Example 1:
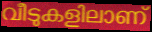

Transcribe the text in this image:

വീടുകളിലാണ്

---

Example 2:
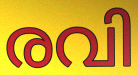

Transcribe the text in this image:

രവി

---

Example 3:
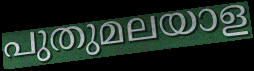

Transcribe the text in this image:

പുതുമലയാള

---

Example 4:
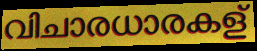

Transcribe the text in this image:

വിചാരധാരകള്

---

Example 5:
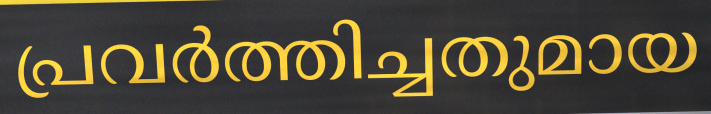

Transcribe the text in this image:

പ്രവർത്തിച്ചതുമായ